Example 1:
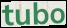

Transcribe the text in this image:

tubo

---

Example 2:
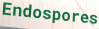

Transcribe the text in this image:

Endospores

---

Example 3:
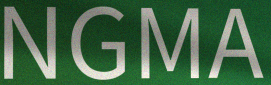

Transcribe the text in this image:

NGMA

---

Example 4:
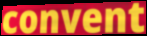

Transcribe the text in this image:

convent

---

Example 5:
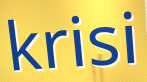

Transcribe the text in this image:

krisi